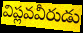
విప్లవవీరుడు